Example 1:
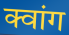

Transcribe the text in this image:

क्वांग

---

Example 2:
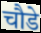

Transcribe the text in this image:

चौडे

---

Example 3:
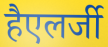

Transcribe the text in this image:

हैएलर्जी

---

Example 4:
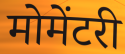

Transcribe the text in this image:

मोमेंटरी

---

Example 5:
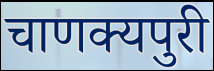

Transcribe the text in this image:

चाणक्यपुरी